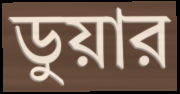
ডুয়ার